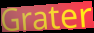
Grater